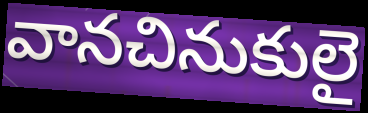
వానచినుకులై